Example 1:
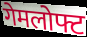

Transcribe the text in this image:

गेमलोफ्ट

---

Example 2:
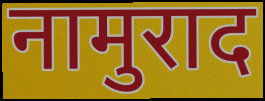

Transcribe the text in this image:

नामुराद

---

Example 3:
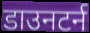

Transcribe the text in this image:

डाउनटर्न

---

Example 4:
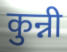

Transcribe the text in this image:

कुन्नी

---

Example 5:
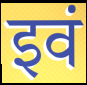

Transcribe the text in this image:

इवं